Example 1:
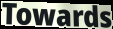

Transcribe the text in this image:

Towards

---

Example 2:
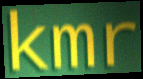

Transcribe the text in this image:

kmr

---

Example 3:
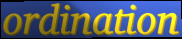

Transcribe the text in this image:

ordination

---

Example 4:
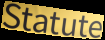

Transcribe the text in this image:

Statute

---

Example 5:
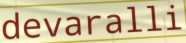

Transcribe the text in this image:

devaralli